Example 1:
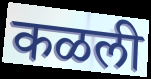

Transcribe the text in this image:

कळली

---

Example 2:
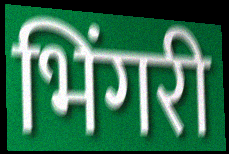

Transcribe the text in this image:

भिंगरी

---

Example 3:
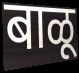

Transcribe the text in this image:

बाळू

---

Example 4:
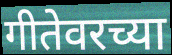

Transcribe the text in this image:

गीतेवरच्या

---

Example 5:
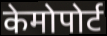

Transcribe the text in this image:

केमोपोर्ट